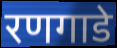
रणगाडे